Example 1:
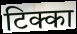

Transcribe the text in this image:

टिक्का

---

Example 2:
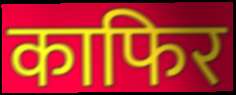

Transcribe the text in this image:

काफिर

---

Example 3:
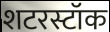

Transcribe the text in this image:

शटरस्टॉक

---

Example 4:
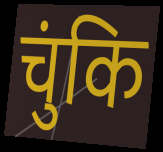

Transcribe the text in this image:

चुंकि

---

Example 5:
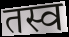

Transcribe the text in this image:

तस्व